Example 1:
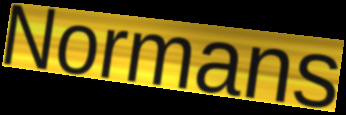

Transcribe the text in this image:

Normans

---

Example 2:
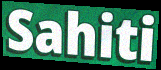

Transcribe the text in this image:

Sahiti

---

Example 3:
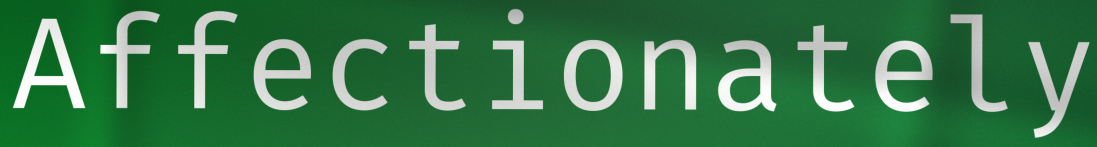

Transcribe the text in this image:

Affectionately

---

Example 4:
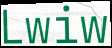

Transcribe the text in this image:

Lwiw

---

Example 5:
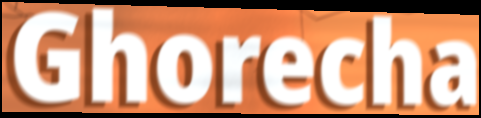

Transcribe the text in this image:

Ghorecha